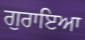
ਗੁਰਾਇਆ